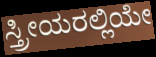
ಸ್ತ್ರೀಯರಲ್ಲಿಯೇ